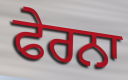
ਫੇਰਨਾ